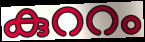
കുററം